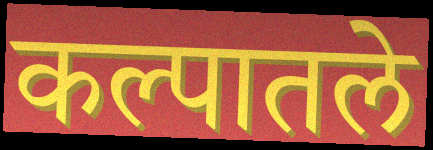
कल्पातले